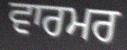
ਵਾਰਮਰ